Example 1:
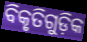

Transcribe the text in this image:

ବିକୃତିଗୁଡ଼ିକ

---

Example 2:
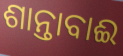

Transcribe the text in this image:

ଶାନ୍ତାବାଈ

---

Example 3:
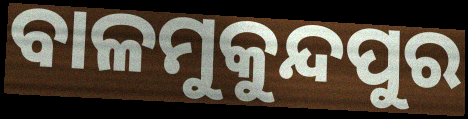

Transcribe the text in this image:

ବାଳମୁକୁନ୍ଦପୁର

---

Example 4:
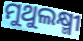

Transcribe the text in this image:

ମୁଥୁଲକ୍ଷ୍ମୀ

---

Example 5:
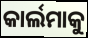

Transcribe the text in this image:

କାର୍ଲମାକୁ